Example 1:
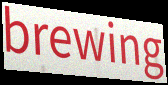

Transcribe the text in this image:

brewing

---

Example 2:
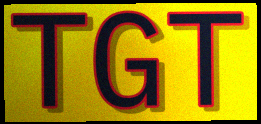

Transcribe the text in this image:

TGT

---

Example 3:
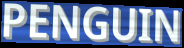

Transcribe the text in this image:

PENGUIN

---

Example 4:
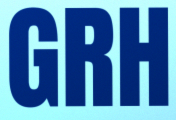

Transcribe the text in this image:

GRH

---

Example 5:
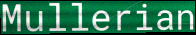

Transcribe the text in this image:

Mullerian